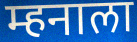
म्हनाला